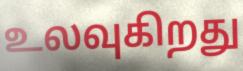
உலவுகிறது